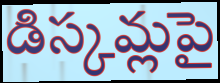
డిస్కమ్లపై